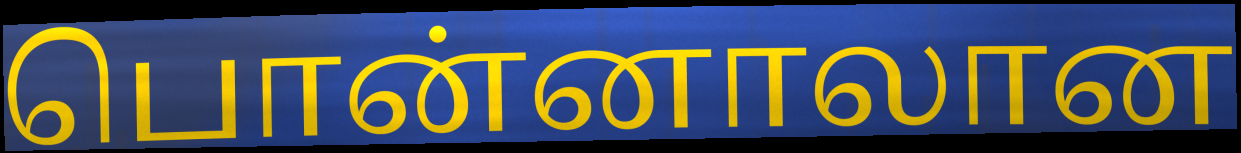
பொன்னாலான